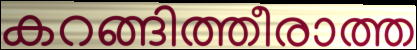
കറങ്ങിത്തീരാത്ത